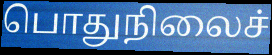
பொதுநிலைச்